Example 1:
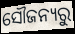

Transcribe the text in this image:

ସୌଜନ୍ୟରୁ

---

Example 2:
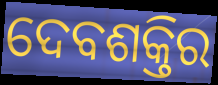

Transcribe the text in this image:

ଦେବଶକ୍ତିର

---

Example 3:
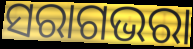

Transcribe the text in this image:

ସରାଗଭରା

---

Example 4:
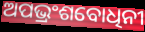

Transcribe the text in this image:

ଅପଭ୍ରଂଶବୋଧିନୀ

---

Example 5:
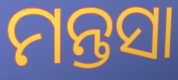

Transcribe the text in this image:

ମନ୍ତସା